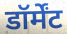
डॉर्मेंट